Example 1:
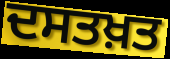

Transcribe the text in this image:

ਦਸਤਖ਼ਤ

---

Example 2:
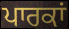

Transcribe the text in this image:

ਪਾਰਕਾਂ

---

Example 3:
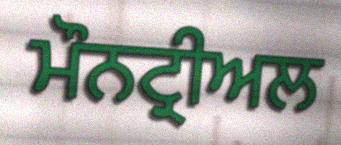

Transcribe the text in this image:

ਮੌਨਟ੍ਰੀਅਲ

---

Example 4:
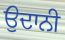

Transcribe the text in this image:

ਉਦਾਨੀ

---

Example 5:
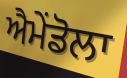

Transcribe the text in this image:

ਐਮੇਂਡੋਲਾ